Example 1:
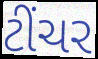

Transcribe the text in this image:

ટીંચર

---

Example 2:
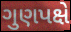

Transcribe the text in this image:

ગુણપક્ષે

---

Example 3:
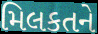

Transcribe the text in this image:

મિલકતને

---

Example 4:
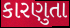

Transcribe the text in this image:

કારણુતા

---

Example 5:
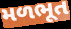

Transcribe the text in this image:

મળભૂત